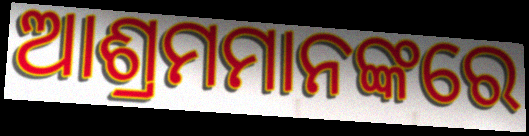
ଆଶ୍ରମମାନଙ୍କରେ